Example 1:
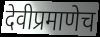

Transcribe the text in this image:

देवीप्रमाणेच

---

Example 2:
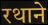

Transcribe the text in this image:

रथाने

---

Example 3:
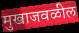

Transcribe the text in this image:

मुखाजवळील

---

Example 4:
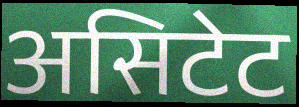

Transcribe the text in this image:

असिटेट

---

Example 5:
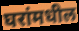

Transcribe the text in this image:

घरांमधील